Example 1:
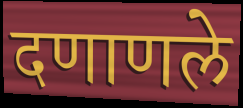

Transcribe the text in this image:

दणाणले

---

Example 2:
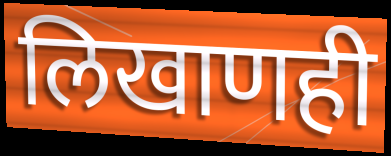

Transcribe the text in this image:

लिखाणही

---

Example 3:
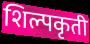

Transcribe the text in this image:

शिल्पकृती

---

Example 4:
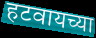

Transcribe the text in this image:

हटवायच्या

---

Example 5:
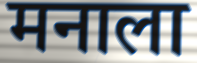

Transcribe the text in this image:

मनाला